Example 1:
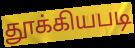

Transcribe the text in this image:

தூக்கியபடி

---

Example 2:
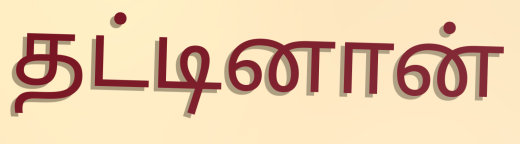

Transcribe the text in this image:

தட்டினான்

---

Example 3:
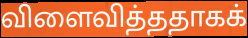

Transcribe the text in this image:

விளைவித்ததாகக்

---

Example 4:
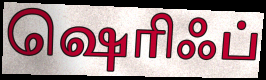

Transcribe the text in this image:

ஷெரிஃப்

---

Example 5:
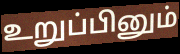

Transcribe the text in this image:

உறுப்பினும்